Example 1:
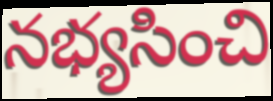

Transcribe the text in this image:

నభ్యసించి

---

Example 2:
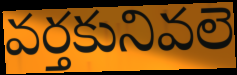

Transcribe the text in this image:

వర్తకునివలె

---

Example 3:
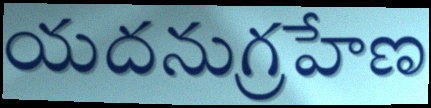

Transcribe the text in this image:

యదనుగ్రహేణ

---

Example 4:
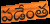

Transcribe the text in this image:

పడేంత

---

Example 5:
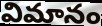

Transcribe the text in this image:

విమానం